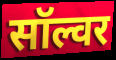
सॉल्वर